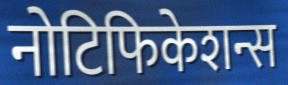
नोटिफिकेशन्स